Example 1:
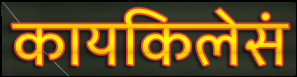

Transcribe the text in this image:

कायकिलेसं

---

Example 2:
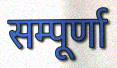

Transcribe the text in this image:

सम्पूर्णा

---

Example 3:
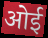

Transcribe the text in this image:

ओई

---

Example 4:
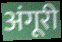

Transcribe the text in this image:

अंगूरी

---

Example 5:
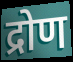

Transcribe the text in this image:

द्रोण